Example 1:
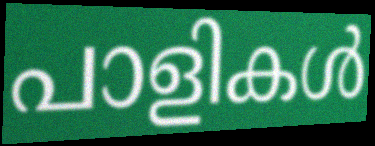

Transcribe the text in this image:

പാളികൾ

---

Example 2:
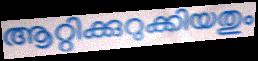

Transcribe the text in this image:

ആറ്റിക്കുറുക്കിയതും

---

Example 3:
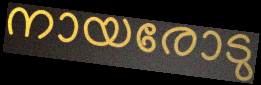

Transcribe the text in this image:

നായരോടു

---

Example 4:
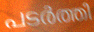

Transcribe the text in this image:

പടർത്തി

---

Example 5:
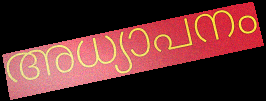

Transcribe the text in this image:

അധ്യാപനം